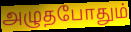
அழுதபோதும்